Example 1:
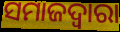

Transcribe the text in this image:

ସମାଜଦ୍ଵାରା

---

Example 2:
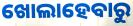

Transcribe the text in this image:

ଖୋଲାହେବାରୁ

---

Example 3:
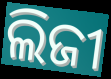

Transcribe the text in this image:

ଲିଜୀ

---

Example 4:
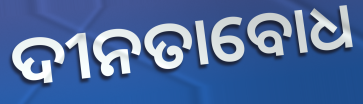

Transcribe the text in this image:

ଦୀନତାବୋଧ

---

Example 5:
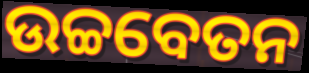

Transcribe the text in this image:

ଉଚ୍ଚବେତନ